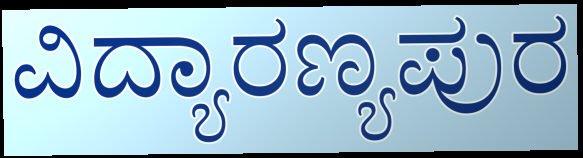
ವಿದ್ಯಾರಣ್ಯಪುರ